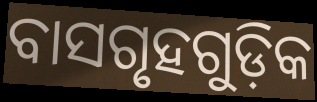
ବାସଗୃହଗୁଡ଼ିକ